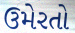
ઉમેરતો